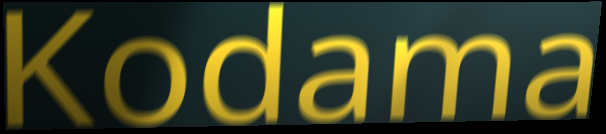
Kodama